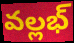
వల్లభ్